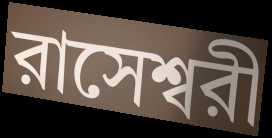
রাসেশ্বরী